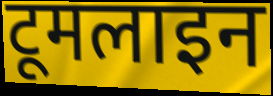
टूमलाइन